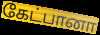
கேட்பானா